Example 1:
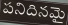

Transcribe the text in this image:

పనిదినమై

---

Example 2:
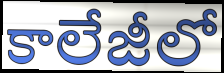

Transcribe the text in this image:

కాలేజీలో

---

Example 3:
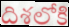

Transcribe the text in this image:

దిశలోకి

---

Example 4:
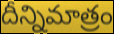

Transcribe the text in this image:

దీన్నిమాత్రం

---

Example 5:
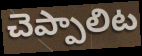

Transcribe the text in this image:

చెప్పాలిట